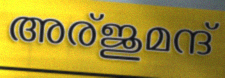
അര്ജുമന്ദ്